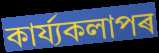
কাৰ্য্যকলাপৰ